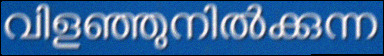
വിളഞ്ഞുനിൽക്കുന്ന